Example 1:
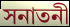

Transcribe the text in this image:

সনাতনী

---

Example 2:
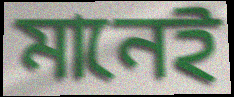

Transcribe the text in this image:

মানেই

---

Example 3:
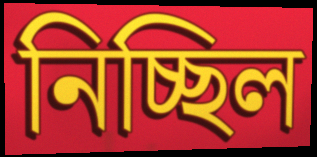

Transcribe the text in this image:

নিচ্ছিল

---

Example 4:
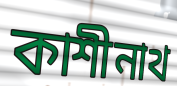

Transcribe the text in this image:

কাশীনাথ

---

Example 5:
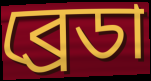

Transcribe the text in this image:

ব্রেডা